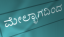
ಮೇಲ್ಭಾಗದಿಂದ